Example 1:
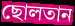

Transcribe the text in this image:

ছোলতান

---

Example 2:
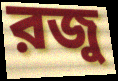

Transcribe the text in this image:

রজু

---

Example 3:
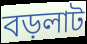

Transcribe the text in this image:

বড়লাট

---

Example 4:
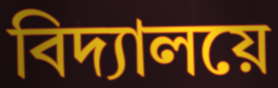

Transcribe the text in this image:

বিদ্যালয়ে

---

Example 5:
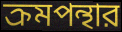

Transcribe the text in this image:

ক্রমপন্থার